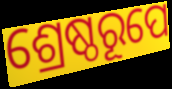
ଶ୍ରେଷ୍ଠରୂପେ